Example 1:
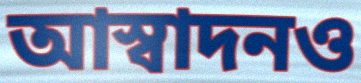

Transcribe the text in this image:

আস্বাদনও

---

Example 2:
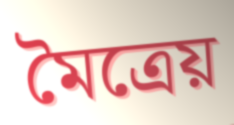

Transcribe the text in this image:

মৈত্রেয়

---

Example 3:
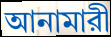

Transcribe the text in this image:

আনামারী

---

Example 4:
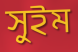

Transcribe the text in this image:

সুইম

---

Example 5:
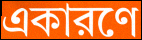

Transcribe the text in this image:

একারণে